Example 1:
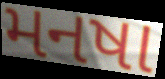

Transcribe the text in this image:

મનષા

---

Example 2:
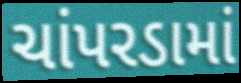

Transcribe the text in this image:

ચાંપરડામાં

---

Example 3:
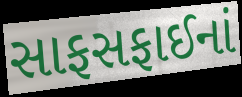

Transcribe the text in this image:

સાફસફાઈનાં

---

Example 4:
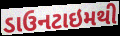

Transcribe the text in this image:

ડાઉનટાઇમથી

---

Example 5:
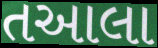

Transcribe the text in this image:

તઆલા